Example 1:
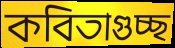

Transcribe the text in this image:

কবিতাগুচ্ছ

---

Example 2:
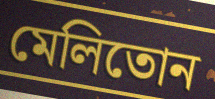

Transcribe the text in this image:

মেলিতোন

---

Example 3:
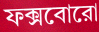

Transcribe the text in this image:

ফক্সবোরো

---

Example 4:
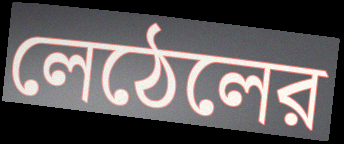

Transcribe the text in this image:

লেঠেলের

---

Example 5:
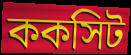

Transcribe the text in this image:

ককসিট